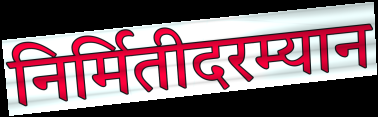
निर्मितीदरम्यान